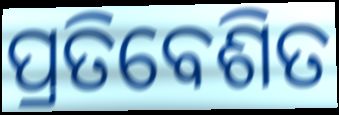
ପ୍ରତିବେଶିତ